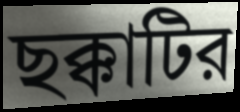
ছক্কাটির